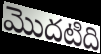
మొదటిది